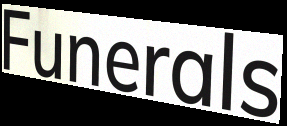
Funerals